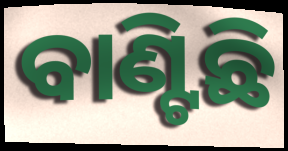
ବାଣ୍ଟିଛି